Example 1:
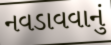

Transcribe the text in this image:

નવડાવવાનું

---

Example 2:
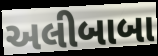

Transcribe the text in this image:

અલીબાબા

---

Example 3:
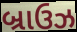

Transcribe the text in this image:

બ્રાઉઝ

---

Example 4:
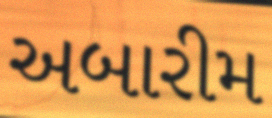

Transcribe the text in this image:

અબારીમ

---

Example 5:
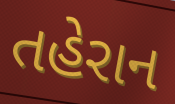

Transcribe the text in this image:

તહેરાન